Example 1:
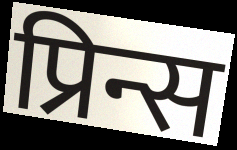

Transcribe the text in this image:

प्रिन्स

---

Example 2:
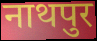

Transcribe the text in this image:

नाथपुर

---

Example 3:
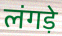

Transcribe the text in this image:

लंगड़े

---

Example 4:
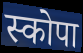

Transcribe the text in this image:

स्कोपा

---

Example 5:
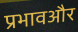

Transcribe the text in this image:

प्रभावऔर